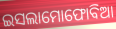
ଇସଲାମୋଫୋବିଆ